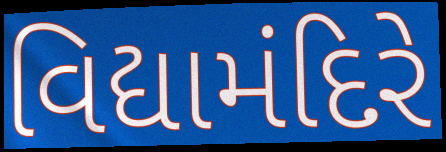
વિદ્યામંદિરે